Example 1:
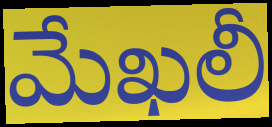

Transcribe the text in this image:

మేఖలీ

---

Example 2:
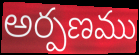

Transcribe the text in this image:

అర్పణము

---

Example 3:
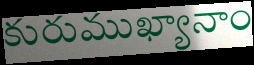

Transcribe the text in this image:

కురుముఖ్యానాం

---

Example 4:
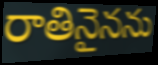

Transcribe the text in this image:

రాతినైనను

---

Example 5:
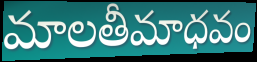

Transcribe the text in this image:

మాలతీమాధవం